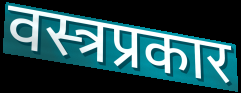
वस्त्रप्रकार